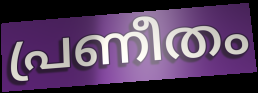
പ്രണീതം